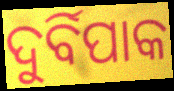
ଦୁର୍ବିପାକ